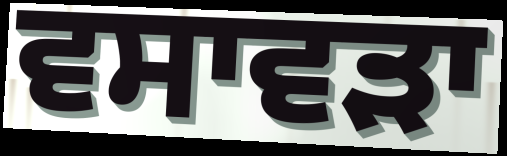
ਵਸਾਵੜਾ